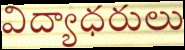
విద్యాధరులు